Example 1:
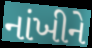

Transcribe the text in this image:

નાંખીને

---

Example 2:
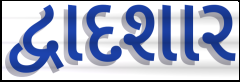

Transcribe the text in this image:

દ્વાદશાર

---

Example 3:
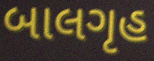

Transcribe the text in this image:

બાલગૃહ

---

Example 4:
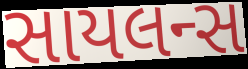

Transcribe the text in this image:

સાયલન્સ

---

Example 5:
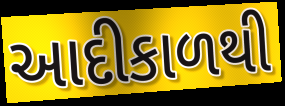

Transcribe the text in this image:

આદીકાળથી